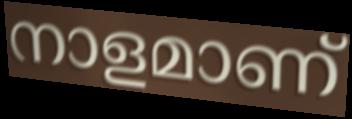
നാളമാണ്